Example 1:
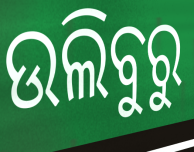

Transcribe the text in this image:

ଉଲିବୁରୁ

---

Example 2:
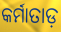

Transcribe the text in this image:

କର୍ମାତାଡ଼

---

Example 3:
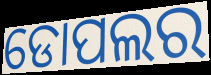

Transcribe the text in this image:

ଡୋପଲର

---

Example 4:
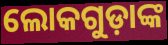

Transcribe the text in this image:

ଲୋକଗୁଡ଼ାଙ୍କ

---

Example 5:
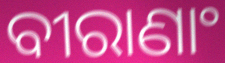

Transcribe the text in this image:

ବୀରାଣାଂ